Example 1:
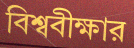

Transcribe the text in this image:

বিশ্ববীক্ষার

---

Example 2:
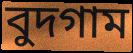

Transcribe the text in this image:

বুদগাম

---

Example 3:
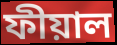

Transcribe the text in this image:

ফীয়াল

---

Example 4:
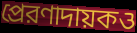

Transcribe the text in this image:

প্রেরণাদায়কও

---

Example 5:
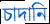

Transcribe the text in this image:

চাদানি